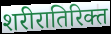
शरीरातिरिक्त